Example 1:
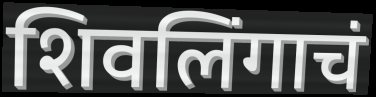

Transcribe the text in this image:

शिवलिंगाचं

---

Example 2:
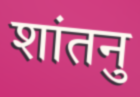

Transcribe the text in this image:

शांतनु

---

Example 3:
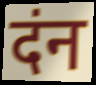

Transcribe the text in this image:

दंन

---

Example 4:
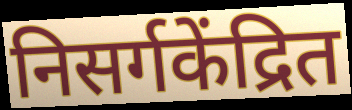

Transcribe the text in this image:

निसर्गकेंद्रित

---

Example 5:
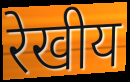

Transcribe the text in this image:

रेखीय